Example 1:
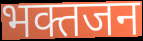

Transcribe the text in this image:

भक्तजन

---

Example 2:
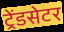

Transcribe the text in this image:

ट्रेंडसेटर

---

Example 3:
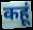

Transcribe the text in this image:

कहूं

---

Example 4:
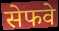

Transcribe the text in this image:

सेफवे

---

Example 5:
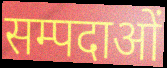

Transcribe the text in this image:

सम्पदाओं